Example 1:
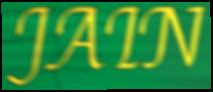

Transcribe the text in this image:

JAIN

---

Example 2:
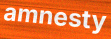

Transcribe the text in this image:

amnesty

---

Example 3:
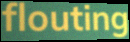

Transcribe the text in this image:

flouting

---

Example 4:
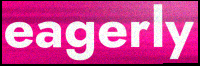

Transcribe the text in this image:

eagerly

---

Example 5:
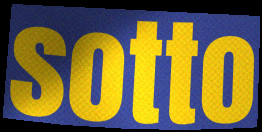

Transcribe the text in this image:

sotto